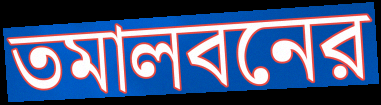
তমালবনের